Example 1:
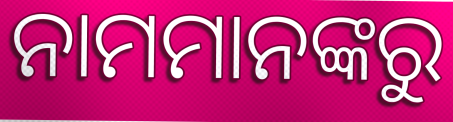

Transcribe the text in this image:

ନାମମାନଙ୍କରୁ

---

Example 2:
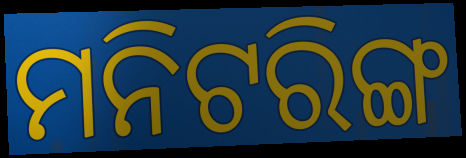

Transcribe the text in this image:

ମନିଟରିଙ୍ଗ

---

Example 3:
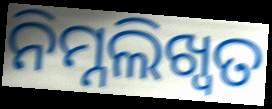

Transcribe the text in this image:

ନିମ୍ନଲିଖ୍ବତ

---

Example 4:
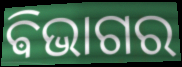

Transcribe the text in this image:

ଵିଭାଗର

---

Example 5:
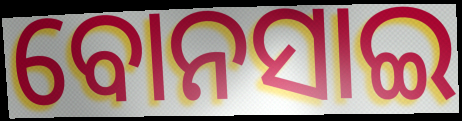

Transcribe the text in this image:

ବୋନସାଇ